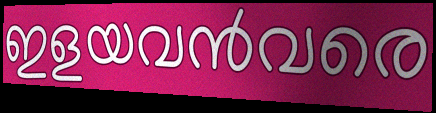
ഇളയവൻവരെ